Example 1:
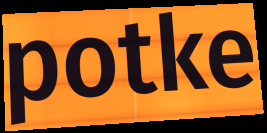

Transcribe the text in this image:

potke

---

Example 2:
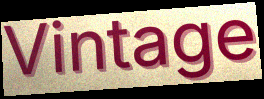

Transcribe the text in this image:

Vintage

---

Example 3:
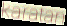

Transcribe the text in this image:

karatan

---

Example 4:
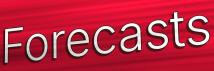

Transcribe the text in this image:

Forecasts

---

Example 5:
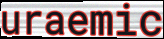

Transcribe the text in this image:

uraemic